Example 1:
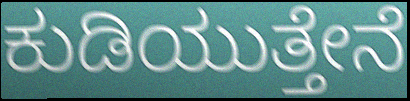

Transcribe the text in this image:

ಕುಡಿಯುತ್ತೇನೆ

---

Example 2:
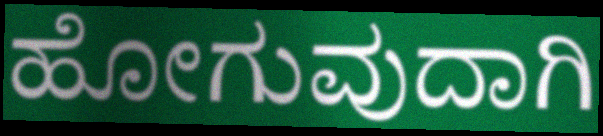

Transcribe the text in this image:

ಹೋಗುವುದಾಗಿ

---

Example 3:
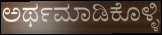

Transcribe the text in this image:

ಅರ್ಥಮಾಡಿಕೊಳ್ಳಿ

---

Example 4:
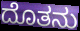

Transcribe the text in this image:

ದೊತನು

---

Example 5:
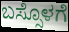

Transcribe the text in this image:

ಬಸ್ಸೊಳಗೆ